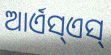
ଆର୍ଏସ୍ଏସ୍